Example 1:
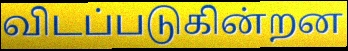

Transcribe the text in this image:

விடப்படுகின்றன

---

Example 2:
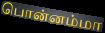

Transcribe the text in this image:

பொன்னம்மா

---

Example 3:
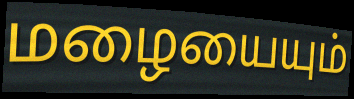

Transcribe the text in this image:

மழையையும்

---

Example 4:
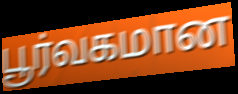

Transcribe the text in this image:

பூர்வகமான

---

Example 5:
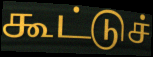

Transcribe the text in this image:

கூட்டுச்